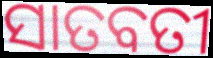
ସାତବତୀ